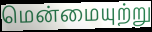
மென்மையுற்று